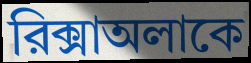
রিক্সাঅলাকে